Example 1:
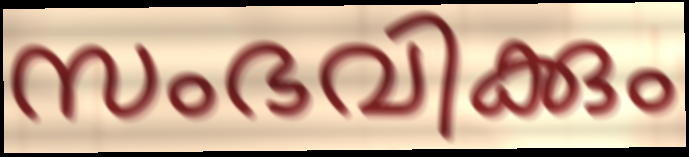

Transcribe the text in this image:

സംഭവിക്കും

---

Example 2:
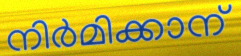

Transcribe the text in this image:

നിർമിക്കാന്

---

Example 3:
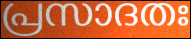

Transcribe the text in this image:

പ്രസാദതഃ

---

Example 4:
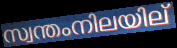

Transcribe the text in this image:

സ്വന്തംനിലയില്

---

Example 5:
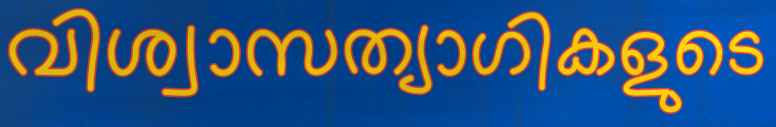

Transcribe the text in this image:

വിശ്വാസത്യാഗികളുടെ